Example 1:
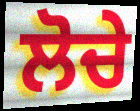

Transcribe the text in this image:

ਲੋਚੇ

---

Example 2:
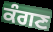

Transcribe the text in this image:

ਕੰਗਣ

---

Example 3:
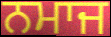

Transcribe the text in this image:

ਨਮਾਜ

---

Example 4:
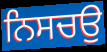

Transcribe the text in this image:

ਨਿਸਚਉ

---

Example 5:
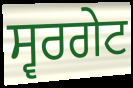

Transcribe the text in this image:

ਸ੍ਵਰਗੇਟ